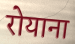
रोयाना